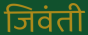
जिवंती